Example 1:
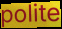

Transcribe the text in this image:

polite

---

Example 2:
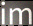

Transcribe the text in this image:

im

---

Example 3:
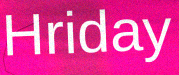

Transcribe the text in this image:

Hriday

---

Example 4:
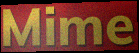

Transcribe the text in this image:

Mime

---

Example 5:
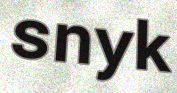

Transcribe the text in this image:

snyk